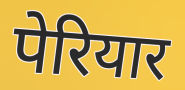
पेरियार